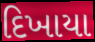
દિખાયા